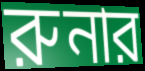
রুনার